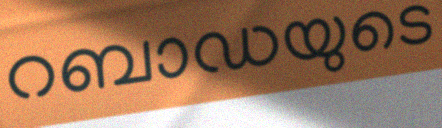
റബാഡയുടെ